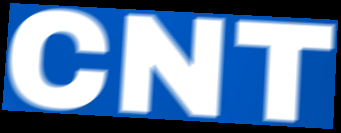
CNT